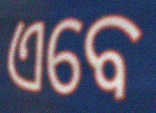
ଏବେ